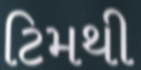
ટિમથી